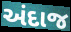
અંદાજ